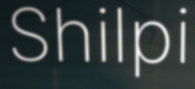
Shilpi